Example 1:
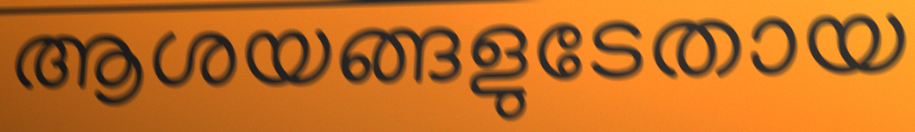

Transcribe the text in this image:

ആശയങ്ങളുടേതായ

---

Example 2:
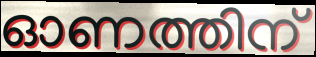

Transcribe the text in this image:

ഓണത്തിന്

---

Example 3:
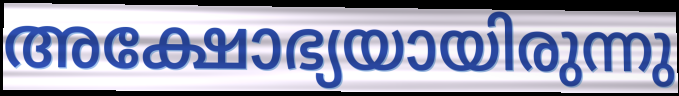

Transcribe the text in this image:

അക്ഷോഭ്യയായിരുന്നു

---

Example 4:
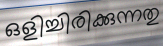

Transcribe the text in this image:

ഒളിച്ചിരിക്കുന്നതു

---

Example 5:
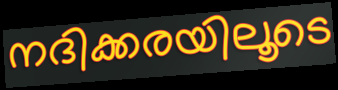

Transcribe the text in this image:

നദിക്കരയിലൂടെ